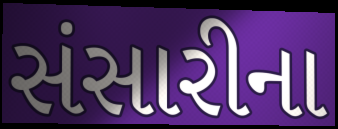
સંસારીના